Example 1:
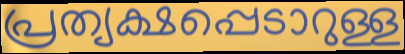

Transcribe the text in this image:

പ്രത്യക്ഷപ്പെടാറുള്ള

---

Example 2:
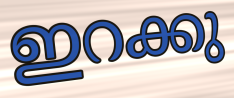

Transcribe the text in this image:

ഇറക്കു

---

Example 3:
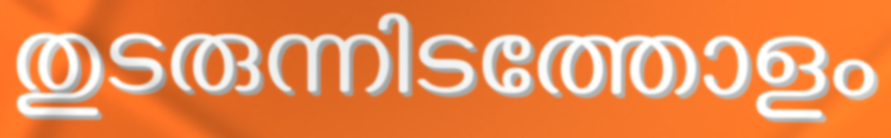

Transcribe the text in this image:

തുടരുന്നിടത്തോളം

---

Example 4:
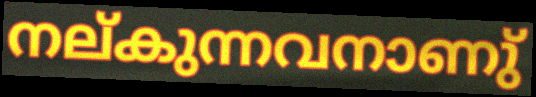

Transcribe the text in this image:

നല്കുന്നവനാണു്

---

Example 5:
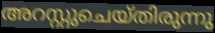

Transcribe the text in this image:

അറസ്റ്റുചെയ്തിരുന്നു